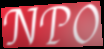
NPO